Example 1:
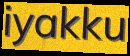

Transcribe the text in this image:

iyakku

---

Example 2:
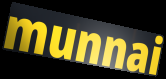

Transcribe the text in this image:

munnai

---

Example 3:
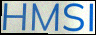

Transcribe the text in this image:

HMSI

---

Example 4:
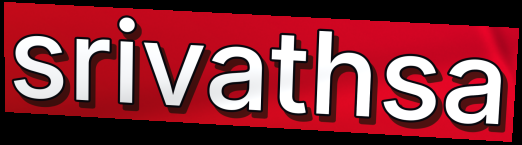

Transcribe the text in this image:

srivathsa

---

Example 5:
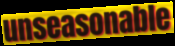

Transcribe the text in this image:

unseasonable